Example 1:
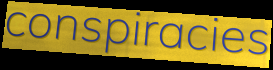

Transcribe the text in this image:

conspiracies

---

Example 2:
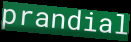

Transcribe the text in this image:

prandial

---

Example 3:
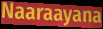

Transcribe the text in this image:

Naaraayana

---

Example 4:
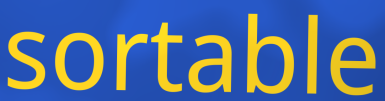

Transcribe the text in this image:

sortable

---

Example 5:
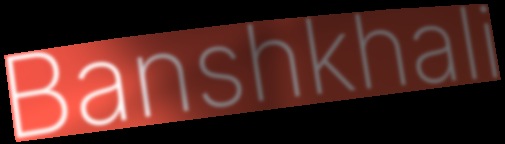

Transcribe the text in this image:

Banshkhali